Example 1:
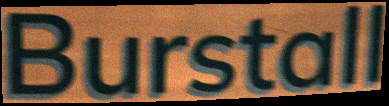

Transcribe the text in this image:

Burstall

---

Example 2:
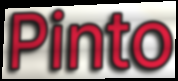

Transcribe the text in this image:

Pinto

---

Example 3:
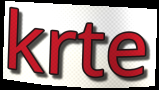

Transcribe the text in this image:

krte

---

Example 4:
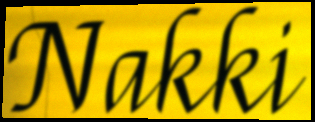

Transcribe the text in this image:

Nakki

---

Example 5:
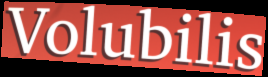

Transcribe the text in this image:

Volubilis